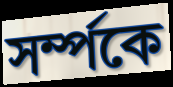
সৰ্ম্পকে